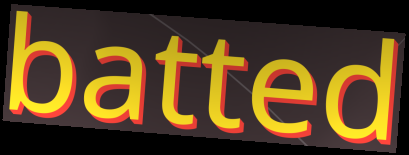
batted